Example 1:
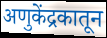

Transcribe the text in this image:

अणुकेंद्रकातून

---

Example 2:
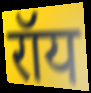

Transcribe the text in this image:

रॉय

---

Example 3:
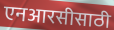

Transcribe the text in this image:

एनआरसीसाठी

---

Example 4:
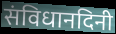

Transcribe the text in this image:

संविधानदिनी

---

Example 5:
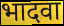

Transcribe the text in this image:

भादवा